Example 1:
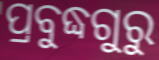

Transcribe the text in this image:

ପ୍ରବୁଦ୍ଧଗୁରୁ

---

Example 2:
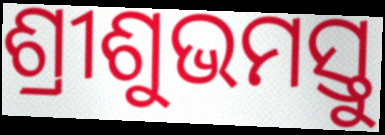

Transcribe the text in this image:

ଶ୍ରୀଶୁଭମସ୍ତୁ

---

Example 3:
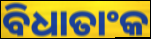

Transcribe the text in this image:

ବିଧାତାଂକ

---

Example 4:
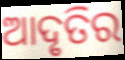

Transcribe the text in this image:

ଆଦୃତିର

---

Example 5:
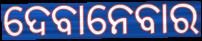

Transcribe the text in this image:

ଦେବାନେବାର